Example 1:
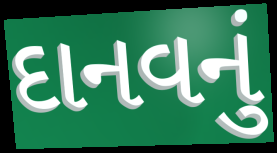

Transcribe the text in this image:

દાનવનું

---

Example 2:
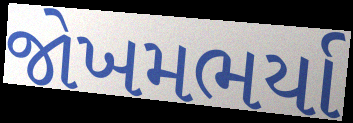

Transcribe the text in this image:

જોખમભર્યા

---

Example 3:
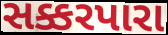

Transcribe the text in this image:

સક્કરપારા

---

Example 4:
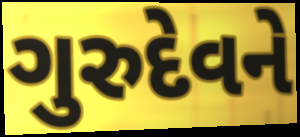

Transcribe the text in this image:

ગુરુદેવને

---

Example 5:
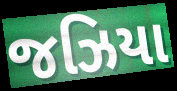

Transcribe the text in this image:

જઝિયા